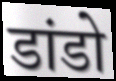
डांडो